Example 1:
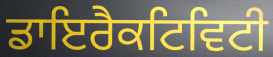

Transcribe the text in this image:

ਡਾਇਰੈਕਟਿਵਿਟੀ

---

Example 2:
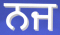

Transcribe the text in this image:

ਨਜ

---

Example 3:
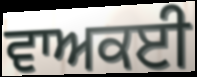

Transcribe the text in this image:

ਵਾਅਕਈ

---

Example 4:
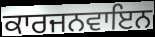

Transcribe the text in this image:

ਕਾਰਜਨਵਾਇਨ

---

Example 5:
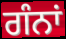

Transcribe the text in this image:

ਗੰਨਾਂ